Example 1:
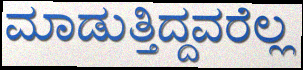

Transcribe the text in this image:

ಮಾಡುತ್ತಿದ್ದವರೆಲ್ಲ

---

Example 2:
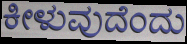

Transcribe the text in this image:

ಕೀಳುವುದೆಂದು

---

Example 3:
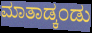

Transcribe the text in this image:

ಮಾತಾಡ್ಕಂಡು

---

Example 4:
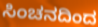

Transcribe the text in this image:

ಸಿಂಚನದಿಂದ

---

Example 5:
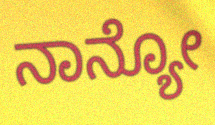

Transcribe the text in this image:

ನಾನ್ಯೋ